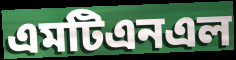
এমটিএনএল